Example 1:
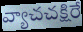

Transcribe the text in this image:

వ్యాచచక్షిరే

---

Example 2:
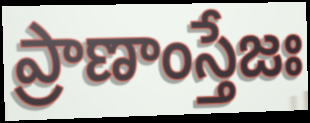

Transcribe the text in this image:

ప్రాణాంస్తేజః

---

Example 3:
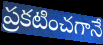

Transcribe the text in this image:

ప్రకటించగానే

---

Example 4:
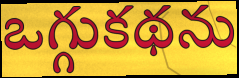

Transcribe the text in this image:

ఒగ్గుకథను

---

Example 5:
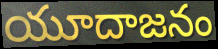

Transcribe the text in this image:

యూదాజనం